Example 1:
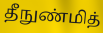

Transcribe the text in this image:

தீநுண்மித்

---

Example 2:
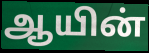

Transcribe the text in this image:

ஆயின்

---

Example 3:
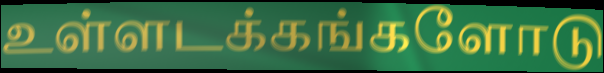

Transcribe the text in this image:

உள்ளடக்கங்களோடு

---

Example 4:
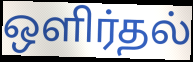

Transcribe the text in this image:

ஒளிர்தல்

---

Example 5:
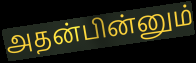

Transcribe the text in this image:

அதன்பின்னும்